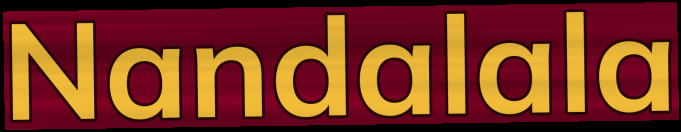
Nandalala